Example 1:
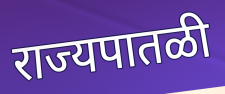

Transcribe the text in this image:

राज्यपातळी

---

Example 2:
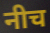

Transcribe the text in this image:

नीच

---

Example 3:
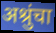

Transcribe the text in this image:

अश्रुंचा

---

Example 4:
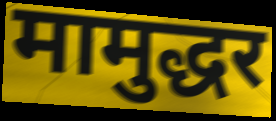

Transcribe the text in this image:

मामुद्धर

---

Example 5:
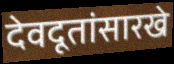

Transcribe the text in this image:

देवदूतांसारखे